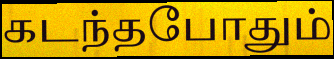
கடந்தபோதும்